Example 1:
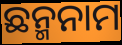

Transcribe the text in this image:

ଛନ୍ମନାମ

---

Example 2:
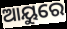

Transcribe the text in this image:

ଆୟୁରେ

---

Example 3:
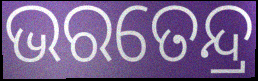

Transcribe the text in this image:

ଭରତେନ୍ଦ୍ର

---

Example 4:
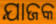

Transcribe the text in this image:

ଯାଜକ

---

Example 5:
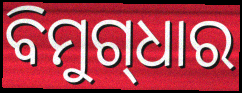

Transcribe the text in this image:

ବିମୁଗ୍‌ଧାର